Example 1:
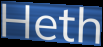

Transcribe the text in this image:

Heth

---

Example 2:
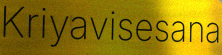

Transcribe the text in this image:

Kriyavisesana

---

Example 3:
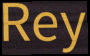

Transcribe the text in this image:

Rey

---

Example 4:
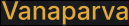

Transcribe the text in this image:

Vanaparva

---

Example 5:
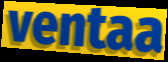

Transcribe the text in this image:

ventaa